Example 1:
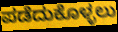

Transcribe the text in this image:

ಪಡೆದುಕೊಳ್ಳಲು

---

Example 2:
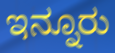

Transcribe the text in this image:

ಇನ್ನೂರು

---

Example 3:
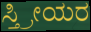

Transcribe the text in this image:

ಸ್ತ್ರೀಯರ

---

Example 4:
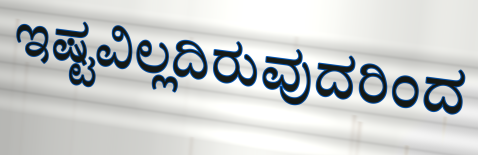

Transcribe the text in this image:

ಇಷ್ಟವಿಲ್ಲದಿರುವುದರಿಂದ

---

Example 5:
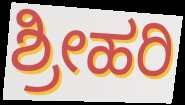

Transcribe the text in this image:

ಶ್ರೀಹರಿ